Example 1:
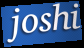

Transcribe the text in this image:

joshi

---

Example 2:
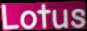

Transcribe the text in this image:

Lotus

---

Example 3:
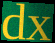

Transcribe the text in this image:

dx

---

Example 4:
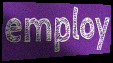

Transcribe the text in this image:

employ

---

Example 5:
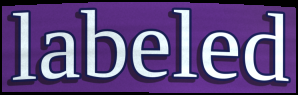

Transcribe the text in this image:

labeled